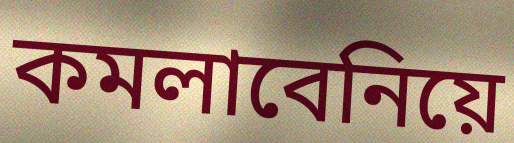
কমলাবেনিয়ে